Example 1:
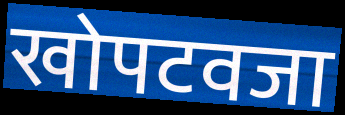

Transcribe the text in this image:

खोपटवजा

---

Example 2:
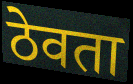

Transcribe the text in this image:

ठेवता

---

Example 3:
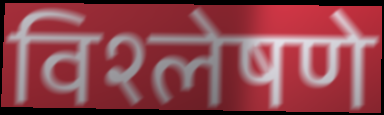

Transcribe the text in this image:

विश्लेषणे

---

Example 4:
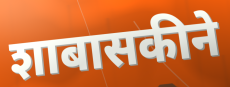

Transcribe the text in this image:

शाबासकीने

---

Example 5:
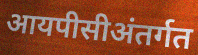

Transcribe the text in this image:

आयपीसीअंतर्गत